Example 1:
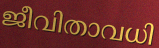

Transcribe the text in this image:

ജീവിതാവധി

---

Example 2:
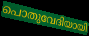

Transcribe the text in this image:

പൊതുവേദിയായി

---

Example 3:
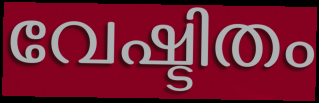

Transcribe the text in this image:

വേഷ്ടിതം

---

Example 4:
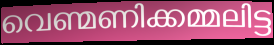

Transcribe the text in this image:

വെണ്മണിക്കമ്മലിട്ട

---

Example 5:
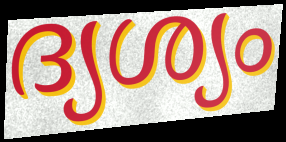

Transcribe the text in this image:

ദ്യശ്യം